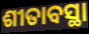
ଶୀତାବସ୍ଥା